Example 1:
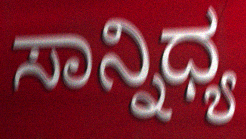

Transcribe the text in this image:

ಸಾನ್ನಿಧ್ಯ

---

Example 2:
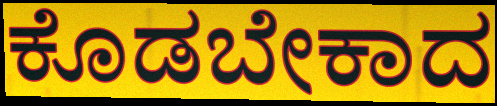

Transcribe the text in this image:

ಕೊಡಬೇಕಾದ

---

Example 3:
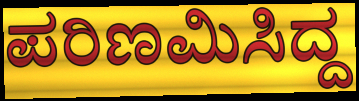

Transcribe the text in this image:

ಪರಿಣಮಿಸಿದ್ದ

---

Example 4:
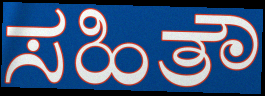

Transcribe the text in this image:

ಸಹಿತೌ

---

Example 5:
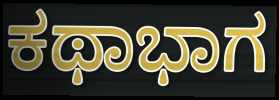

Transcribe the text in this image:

ಕಥಾಭಾಗ